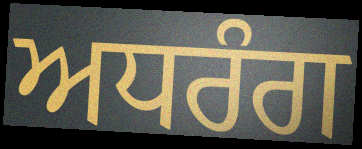
ਅਧਰੰਗ